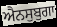
ਐਨਸੁਬੁਗਾ